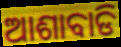
ଆଶାବାଡି